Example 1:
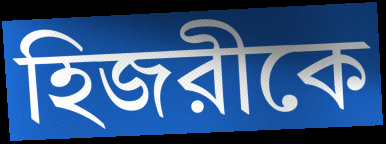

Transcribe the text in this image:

হিজরীকে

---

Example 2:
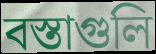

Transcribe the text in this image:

বস্তাগুলি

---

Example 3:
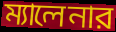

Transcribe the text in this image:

ম্যালেনার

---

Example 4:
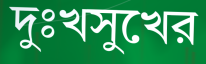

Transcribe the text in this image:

দুঃখসুখের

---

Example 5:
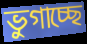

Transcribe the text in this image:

ভুগাচ্ছে